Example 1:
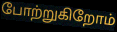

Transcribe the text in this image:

போற்றுகிறோம்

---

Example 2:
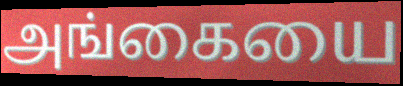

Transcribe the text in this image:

அங்கையை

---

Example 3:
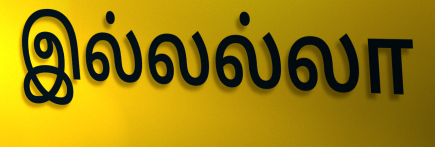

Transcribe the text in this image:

இல்லல்லா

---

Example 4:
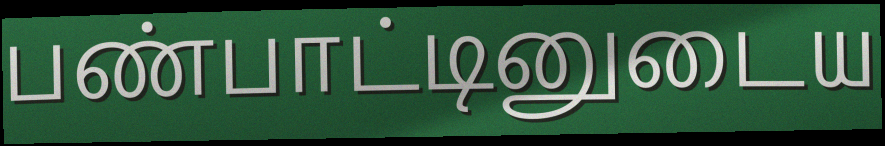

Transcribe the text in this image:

பண்பாட்டினுடைய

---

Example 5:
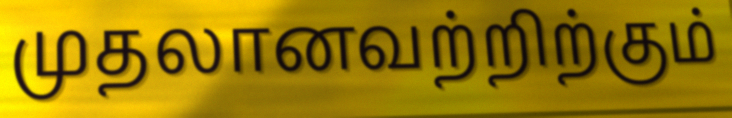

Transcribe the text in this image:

முதலானவற்றிற்கும்